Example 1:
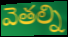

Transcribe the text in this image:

వెతల్ని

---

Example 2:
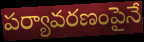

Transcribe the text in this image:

పర్యావరణంపైనే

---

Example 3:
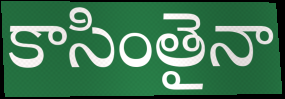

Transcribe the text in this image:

కాసింతైనా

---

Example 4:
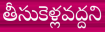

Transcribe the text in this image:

తీసుకెళ్లవద్దని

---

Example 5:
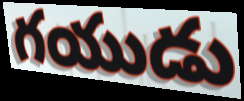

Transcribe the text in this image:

గయుడు